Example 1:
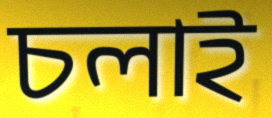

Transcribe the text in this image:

চলাই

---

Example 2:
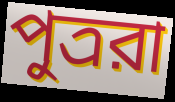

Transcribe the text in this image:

পুত্ররা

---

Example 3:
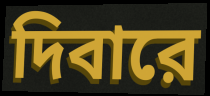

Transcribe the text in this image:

দিবারে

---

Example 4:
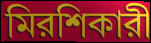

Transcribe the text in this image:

মিরশিকারী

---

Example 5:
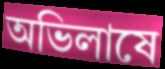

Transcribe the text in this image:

অভিলাষে